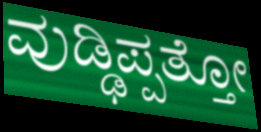
ವುಡ್ಢಿಪ್ಪತ್ತೋ